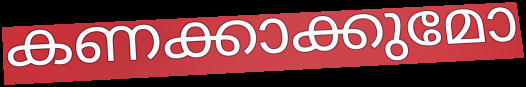
കണക്കാക്കുമോ